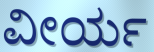
ವೀರ್ಯ